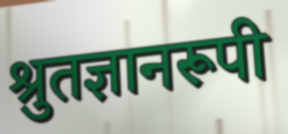
श्रुतज्ञानरूपी